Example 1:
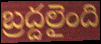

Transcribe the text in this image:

బ్రద్దలైంది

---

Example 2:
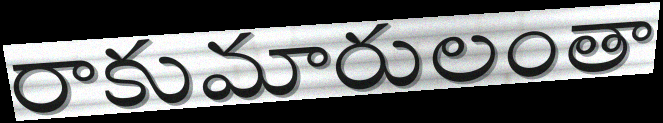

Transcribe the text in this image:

రాకుమారులంతా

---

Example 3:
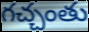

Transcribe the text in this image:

గచ్చంతు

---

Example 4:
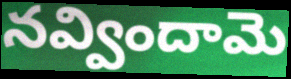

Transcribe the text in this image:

నవ్విందామె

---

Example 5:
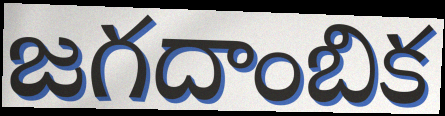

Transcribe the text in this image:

జగదాంబిక